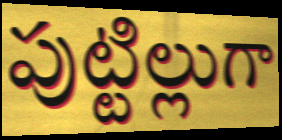
పుట్టిల్లుగా